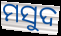
ମସୁଦ